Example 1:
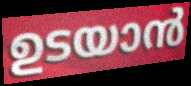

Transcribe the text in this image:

ഉടയാൻ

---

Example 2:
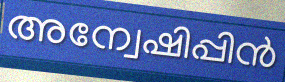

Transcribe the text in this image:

അന്വേഷിപ്പിൻ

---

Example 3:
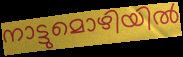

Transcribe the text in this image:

നാട്ടുമൊഴിയിൽ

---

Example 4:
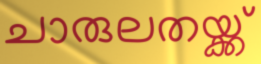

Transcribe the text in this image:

ചാരുലതയ്ക്ക്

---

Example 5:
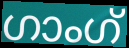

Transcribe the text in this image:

ഗാംഗ്